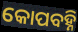
କୋପବହ୍ନି